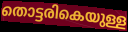
തൊട്ടരികെയുള്ള